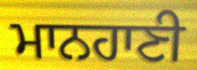
ਮਾਨਹਾਣੀ